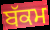
ਬੱਕਮ